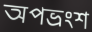
অপভ্ৰংশ